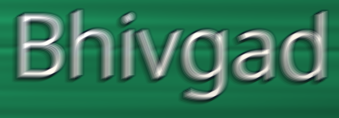
Bhivgad